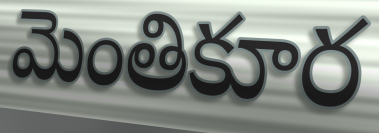
మెంతికూర